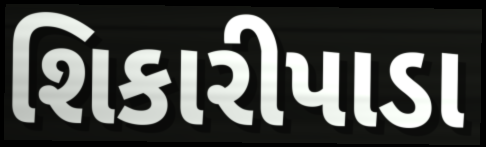
શિકારીપાડા